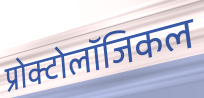
प्रोक्टोलॉजिकल